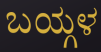
ಬಯ್ಗಳ